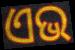
ଏଭ